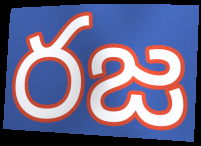
రజ